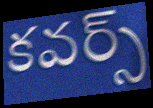
కవర్స్